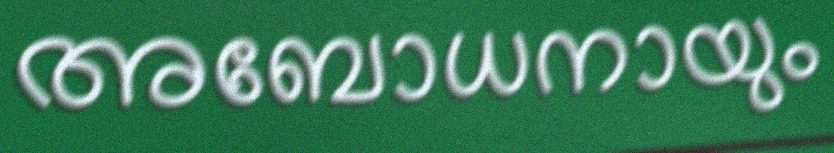
അബോധനായും